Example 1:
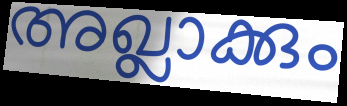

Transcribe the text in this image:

അഖ്ലാക്കും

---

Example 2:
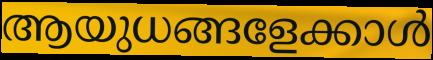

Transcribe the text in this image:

ആയുധങ്ങളേക്കാൾ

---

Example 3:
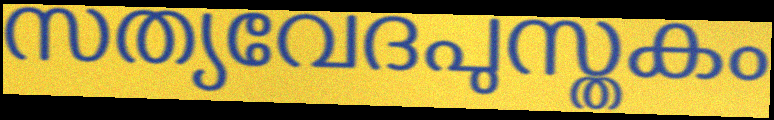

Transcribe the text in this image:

സത്യവേദപുസ്തകം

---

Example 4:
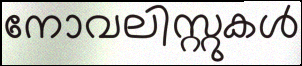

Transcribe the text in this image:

നോവലിസ്റ്റുകൾ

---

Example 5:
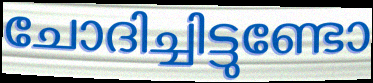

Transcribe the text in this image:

ചോദിച്ചിട്ടുണ്ടോ